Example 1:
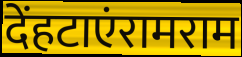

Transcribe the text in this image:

देंहटाएंरामराम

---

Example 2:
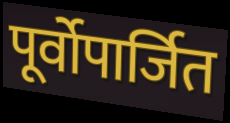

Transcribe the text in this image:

पूर्वोपार्जित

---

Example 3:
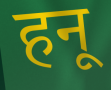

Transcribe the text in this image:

हनू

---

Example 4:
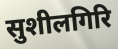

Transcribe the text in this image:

सुशीलगिरि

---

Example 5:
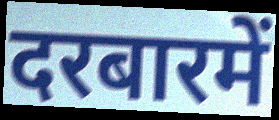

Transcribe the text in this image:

दरबारमें